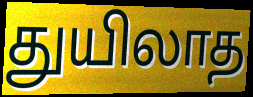
துயிலாத